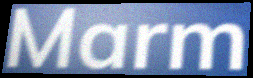
Marm